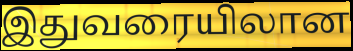
இதுவரையிலான